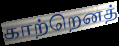
காற்றெனத்